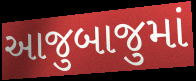
આજુબાજુમાં